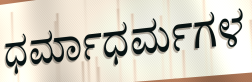
ಧರ್ಮಾಧರ್ಮಗಳ